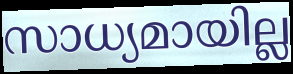
സാധ്യമായില്ല